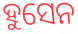
ହୁସେନ